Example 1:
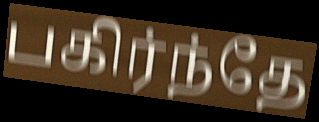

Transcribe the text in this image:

பகிர்ந்தே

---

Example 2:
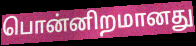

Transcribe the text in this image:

பொன்னிறமானது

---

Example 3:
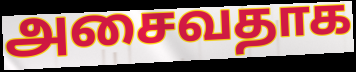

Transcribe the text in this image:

அசைவதாக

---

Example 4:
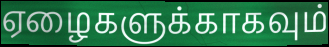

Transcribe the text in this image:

ஏழைகளுக்காகவும்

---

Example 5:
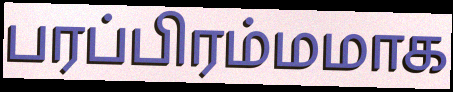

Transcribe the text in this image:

பரப்பிரம்மமாக